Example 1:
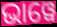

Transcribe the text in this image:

ଭାୱେ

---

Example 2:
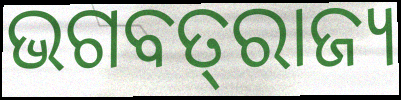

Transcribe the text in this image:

ଭଗବତ୍‌ରାଜ୍ୟ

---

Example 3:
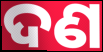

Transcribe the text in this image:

ଦଣ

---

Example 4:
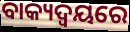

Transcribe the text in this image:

ବାକ୍ୟଦ୍ଵୟରେ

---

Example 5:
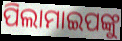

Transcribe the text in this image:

ପିଲାମାଇପଙ୍କୁ